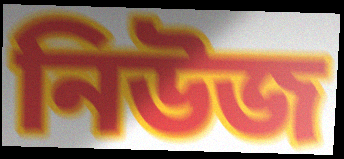
নিউজ